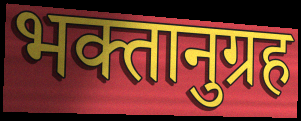
भक्तानुग्रह